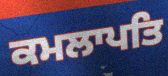
ਕਮਲਾਪਤਿ